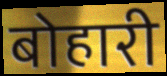
बोहारी